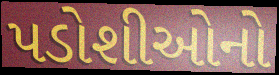
પડોશીઓનો